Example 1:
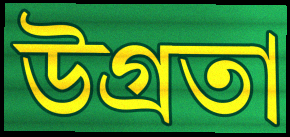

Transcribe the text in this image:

উগ্ৰতা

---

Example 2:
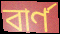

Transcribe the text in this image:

বাৰ্ণ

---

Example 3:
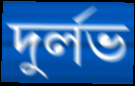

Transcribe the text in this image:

দুৰ্লভ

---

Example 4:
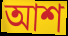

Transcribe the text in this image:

আশ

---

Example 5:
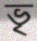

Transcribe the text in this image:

ভৃ